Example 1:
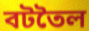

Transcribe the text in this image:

বটতৈল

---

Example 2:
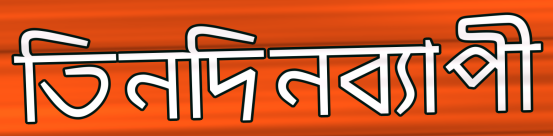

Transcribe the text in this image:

তিনদিনব্যাপী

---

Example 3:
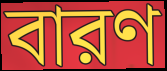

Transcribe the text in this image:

বারণ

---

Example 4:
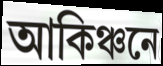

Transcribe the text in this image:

আকিঞ্চনে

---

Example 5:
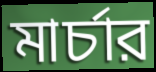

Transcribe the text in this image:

মার্চার